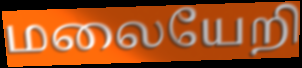
மலையேறி